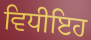
ਵਿਧੀਇਹ